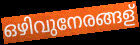
ഒഴിവുനേരങ്ങള്